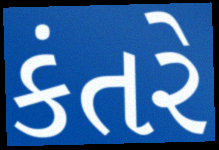
કંતરે